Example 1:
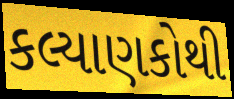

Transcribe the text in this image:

કલ્યાણકોથી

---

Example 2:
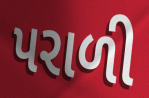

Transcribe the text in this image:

પરાળી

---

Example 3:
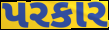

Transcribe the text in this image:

પરકાર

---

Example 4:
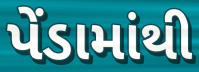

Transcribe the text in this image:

પેંડામાંથી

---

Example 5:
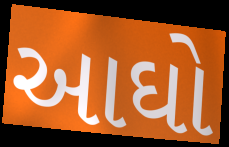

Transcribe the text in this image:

આઘો